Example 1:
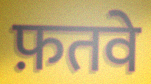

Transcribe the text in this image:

फ़तवे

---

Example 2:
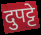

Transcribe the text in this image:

दुपट्टे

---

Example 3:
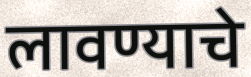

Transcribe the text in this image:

लावण्याचे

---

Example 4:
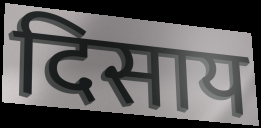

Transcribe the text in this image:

दिसाय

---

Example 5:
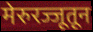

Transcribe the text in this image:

मेरुरज्जूतून